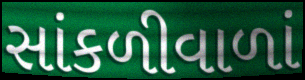
સાંકળીવાળાં